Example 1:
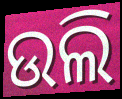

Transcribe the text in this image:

ଉଲି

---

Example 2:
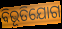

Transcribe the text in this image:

ବିଭୂତିଯୋଗ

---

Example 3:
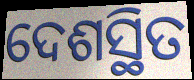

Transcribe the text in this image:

ଦେଶସ୍ଥିତ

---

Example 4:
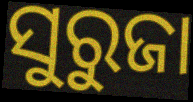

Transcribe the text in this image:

ସୁରୁଜା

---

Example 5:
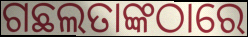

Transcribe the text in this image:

ଗଛଲତାଙ୍କଠାରେ